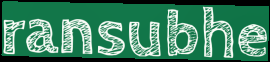
ransubhe